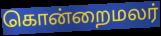
கொன்றைமலர்